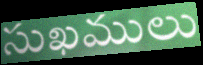
సుఖములు